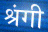
श्रंगी